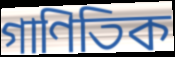
গাণিতিক